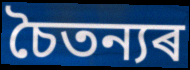
চৈতন্যৰ